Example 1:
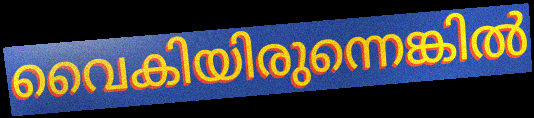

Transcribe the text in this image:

വൈകിയിരുന്നെങ്കിൽ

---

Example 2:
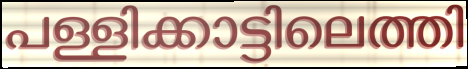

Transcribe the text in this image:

പള്ളിക്കാട്ടിലെത്തി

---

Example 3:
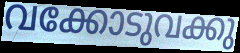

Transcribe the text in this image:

വക്കോടുവക്കു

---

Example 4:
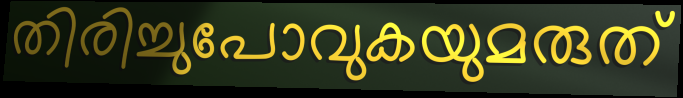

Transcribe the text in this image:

തിരിച്ചുപോവുകയുമരുത്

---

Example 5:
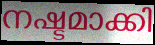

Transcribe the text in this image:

നഷ്ടമാക്കി